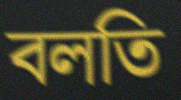
বলতি